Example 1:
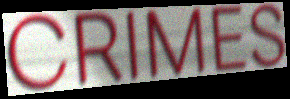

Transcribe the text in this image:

CRIMES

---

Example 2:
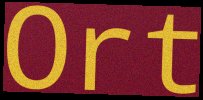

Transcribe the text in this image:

Ort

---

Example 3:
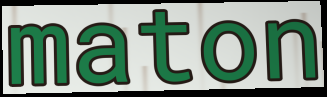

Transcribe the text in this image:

maton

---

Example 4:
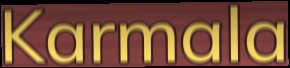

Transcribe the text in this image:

Karmala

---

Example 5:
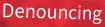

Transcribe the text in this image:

Denouncing